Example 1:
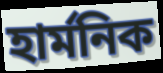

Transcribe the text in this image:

হার্মনিক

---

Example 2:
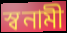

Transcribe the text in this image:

স্বনামী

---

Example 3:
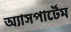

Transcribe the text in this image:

অ্যাসপার্টেম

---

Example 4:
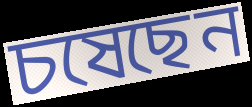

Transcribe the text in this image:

চষেছেন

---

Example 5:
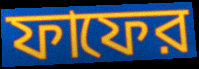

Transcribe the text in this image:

ফাফের